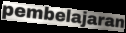
pembelajaran